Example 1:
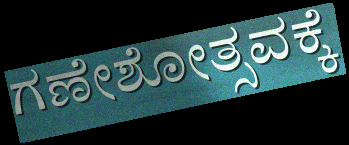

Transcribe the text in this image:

ಗಣೇಶೋತ್ಸವಕ್ಕೆ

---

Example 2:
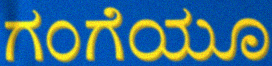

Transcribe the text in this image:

ಗಂಗೆಯೂ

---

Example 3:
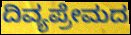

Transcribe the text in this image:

ದಿವ್ಯಪ್ರೇಮದ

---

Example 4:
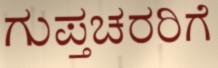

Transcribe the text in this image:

ಗುಪ್ತಚರರಿಗೆ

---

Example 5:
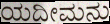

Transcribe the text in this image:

ಯದೀಮನು